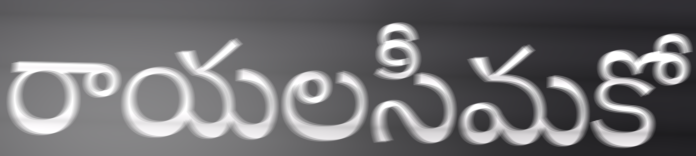
రాయలసీమకో